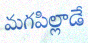
మగపిల్లాడే